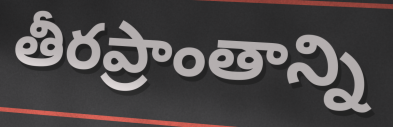
తీరప్రాంతాన్ని